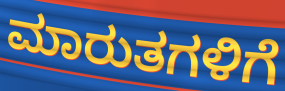
ಮಾರುತಗಳಿಗೆ